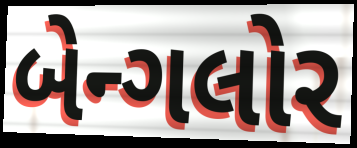
બેન્ગલોર